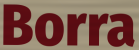
Borra